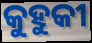
କୁହୁକୀ